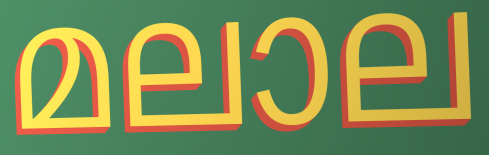
മലാല